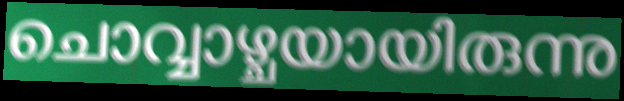
ചൊവ്വാഴ്ചയായിരുന്നു